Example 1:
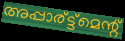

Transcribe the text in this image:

അപ്പാര്ട്ട്മെന്റ്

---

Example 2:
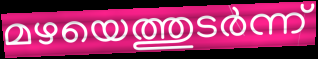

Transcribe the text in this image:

മഴയെത്തുടർന്ന്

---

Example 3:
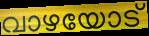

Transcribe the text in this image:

വാഴയോട്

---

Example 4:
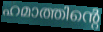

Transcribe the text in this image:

ഹമാത്തിന്റെ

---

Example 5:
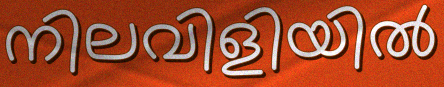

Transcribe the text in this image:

നിലവിളിയിൽ